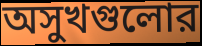
অসুখগুলোর